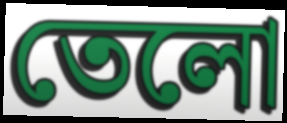
তেলো